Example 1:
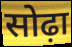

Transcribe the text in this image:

सोढ़ा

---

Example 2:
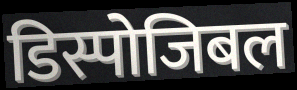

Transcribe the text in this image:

डिस्पोजिबल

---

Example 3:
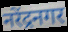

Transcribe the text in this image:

नरेंद्रनगर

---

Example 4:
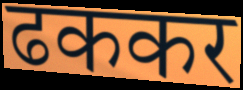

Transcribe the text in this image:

ढककर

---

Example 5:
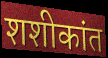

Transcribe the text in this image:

शशीकांत